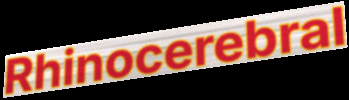
Rhinocerebral